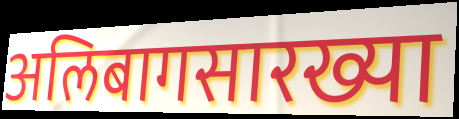
अलिबागसारख्या